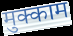
मुक्काम